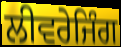
ਲੀਵਰੇਜਿੰਗ